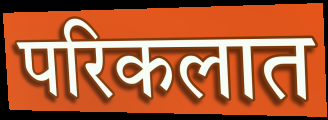
परिकलात